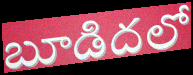
బూడిదలో